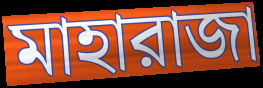
মাহারাজা